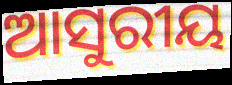
ଆସୁରୀୟ